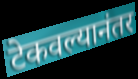
टेकवल्यानंतर